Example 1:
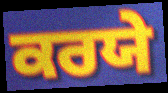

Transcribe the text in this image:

ਕਰਯੇ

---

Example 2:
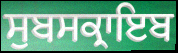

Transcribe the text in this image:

ਸੁਬਸਕ੍ਰਾਇਬ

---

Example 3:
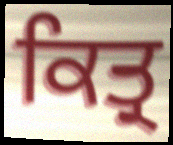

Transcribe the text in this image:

ਕਿਤ੍ਰ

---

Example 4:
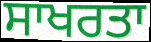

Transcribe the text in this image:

ਸਾਖਰਤਾ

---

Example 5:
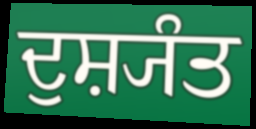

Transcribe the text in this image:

ਦੁਸ਼੍ਯੰਤ